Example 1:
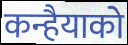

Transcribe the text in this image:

कन्हैयाको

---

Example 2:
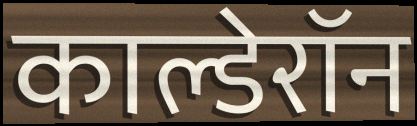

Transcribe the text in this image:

काल्डेरॉन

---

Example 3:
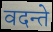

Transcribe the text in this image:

वदन्ते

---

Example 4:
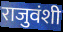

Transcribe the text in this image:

राजुवंशी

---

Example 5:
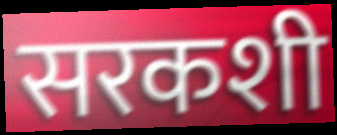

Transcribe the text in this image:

सरकशी